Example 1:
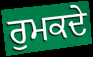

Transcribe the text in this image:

ਰੁਮਕਦੇ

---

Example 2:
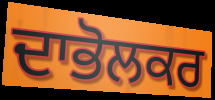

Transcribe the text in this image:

ਦਾਭੋਲਕਰ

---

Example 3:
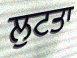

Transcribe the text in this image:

ਲੁਟਤਾ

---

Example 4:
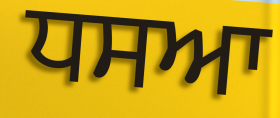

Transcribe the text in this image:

ਧਸਆ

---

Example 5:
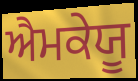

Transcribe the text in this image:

ਐਮਕੇਯੂ